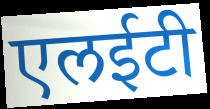
एलईटी